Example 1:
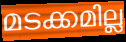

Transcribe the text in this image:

മടക്കമില്ല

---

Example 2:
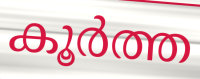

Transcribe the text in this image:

കൂർത്ത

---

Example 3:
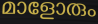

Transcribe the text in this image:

മാളോരും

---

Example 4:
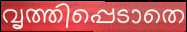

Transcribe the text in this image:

വൃത്തിപ്പെടാതെ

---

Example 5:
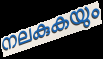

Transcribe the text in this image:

നലകുകയും